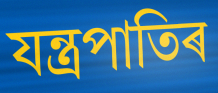
যন্ত্ৰপাতিৰ